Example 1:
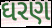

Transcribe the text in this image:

ઘરણ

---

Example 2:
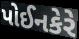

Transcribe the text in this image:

પોઈનકેરે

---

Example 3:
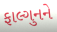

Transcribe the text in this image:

ફાલ્ગુનને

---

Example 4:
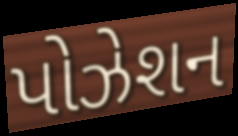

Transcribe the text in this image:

પોઝેશન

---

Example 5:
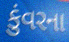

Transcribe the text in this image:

કુંવરના